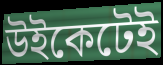
উইকেটেই